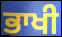
ਭਾਖੀ